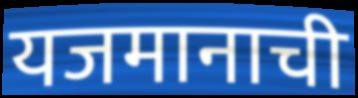
यजमानाची